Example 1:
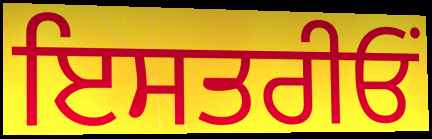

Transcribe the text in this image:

ਇਸਤਰੀਓਂ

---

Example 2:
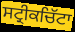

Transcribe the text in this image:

ਸਟ੍ਰੀਕਚਿੱਟਾ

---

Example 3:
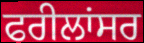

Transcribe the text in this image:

ਫਰੀਲਾਂਸਰ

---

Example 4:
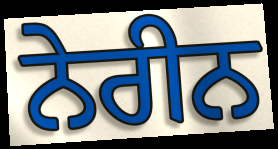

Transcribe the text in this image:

ਨੇਰੀਨ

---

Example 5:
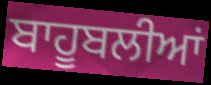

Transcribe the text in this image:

ਬਾਹੂਬਲੀਆਂ